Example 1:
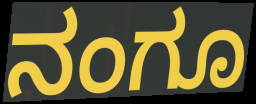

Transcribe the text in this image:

ನಂಗೂ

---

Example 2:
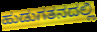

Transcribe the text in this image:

ಹುಡುಗತನದಲ್ಲಿ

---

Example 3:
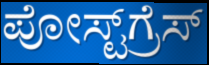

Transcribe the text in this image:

ಪೋಸ್ಟ್‌ಗ್ರೆಸ್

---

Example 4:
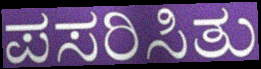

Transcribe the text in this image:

ಪಸರಿಸಿತು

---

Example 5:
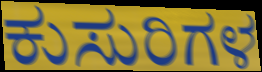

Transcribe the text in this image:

ಕುಸುರಿಗಳ